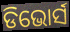
ଡିଭୋର୍ସ